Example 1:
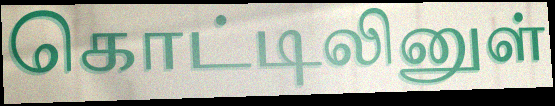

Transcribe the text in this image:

கொட்டிலினுள்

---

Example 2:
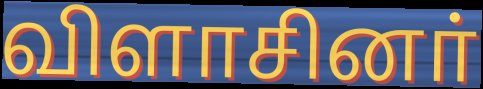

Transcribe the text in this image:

விளாசினர்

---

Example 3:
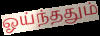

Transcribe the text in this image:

ஓய்ந்ததும்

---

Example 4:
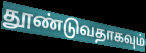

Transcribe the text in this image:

தூண்டுவதாகவும்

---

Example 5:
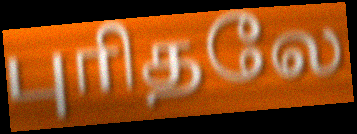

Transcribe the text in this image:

புரிதலே